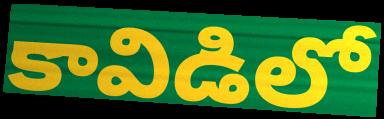
కావిడిలో